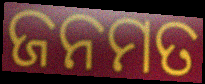
ଜନମତ